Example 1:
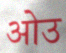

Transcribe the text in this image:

ओउ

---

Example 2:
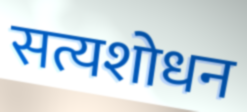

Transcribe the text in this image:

सत्यशोधन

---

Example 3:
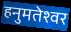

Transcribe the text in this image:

हनुमतेश्वर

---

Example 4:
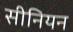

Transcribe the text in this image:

सीनियन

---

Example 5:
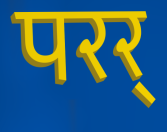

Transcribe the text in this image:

परर्